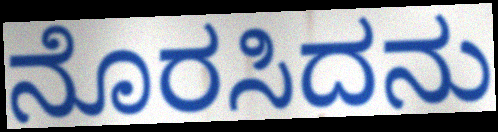
ನೊರಸಿದನು